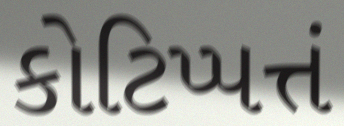
કોટિપ્પત્તં